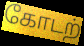
கோடற்